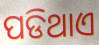
ପଡିଥାଏ